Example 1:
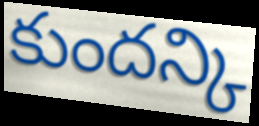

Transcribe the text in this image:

కుందన్కి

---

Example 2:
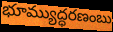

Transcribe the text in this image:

భూమ్యుద్ధరణంబు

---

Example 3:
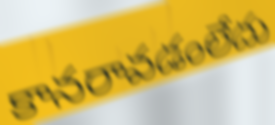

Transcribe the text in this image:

కానరావడంలేదు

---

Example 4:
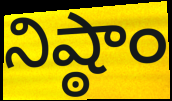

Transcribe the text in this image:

నిష్ఠాం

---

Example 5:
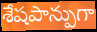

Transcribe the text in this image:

శేషపాన్పుగా